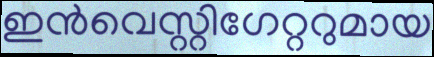
ഇൻവെസ്റ്റിഗേറ്ററുമായ